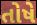
તોષે